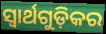
ସ୍ୱାର୍ଥଗୁଡ଼ିକର